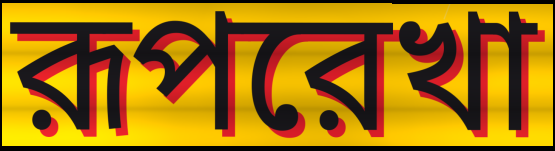
রূপরেখা